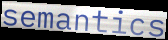
semantics